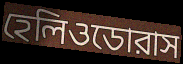
হেলিওডোরাস